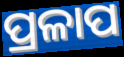
ପ୍ରଳାପ